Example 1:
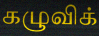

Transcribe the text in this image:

கழுவிக்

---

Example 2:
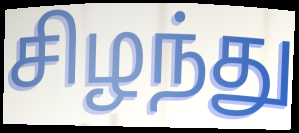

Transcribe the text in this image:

சிழந்து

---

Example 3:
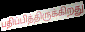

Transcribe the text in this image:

பதிப்பித்திருக்கிறது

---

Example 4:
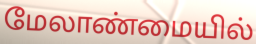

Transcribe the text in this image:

மேலாண்மையில்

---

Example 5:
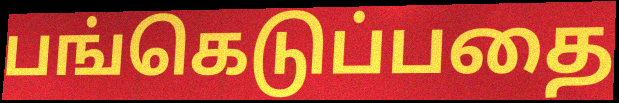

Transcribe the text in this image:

பங்கெடுப்பதை